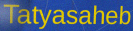
Tatyasaheb